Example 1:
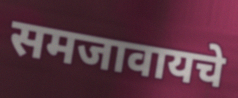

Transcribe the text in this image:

समजावायचे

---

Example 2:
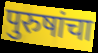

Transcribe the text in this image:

पुरुषांचा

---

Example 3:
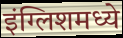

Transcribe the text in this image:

इंग्लिशमध्ये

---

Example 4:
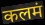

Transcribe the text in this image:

कलमं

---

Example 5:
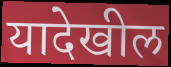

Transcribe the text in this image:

यादेखील